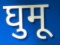
घुमू